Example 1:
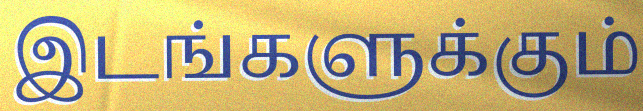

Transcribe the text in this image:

இடங்களுக்கும்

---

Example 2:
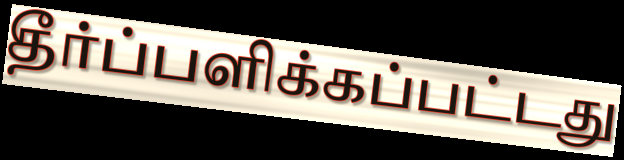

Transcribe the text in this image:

தீர்ப்பளிக்கப்பட்டது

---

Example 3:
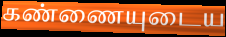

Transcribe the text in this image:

கண்ணையுடைய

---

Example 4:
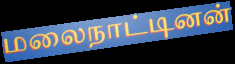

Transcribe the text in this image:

மலைநாட்டினன்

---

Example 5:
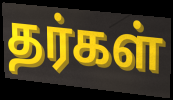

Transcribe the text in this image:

தர்கள்